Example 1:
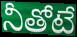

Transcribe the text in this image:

నీతోటే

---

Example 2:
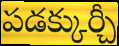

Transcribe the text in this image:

పడక్కుర్చీ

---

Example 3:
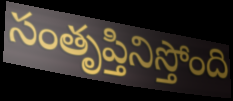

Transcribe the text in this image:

సంతృప్తినిస్తోంది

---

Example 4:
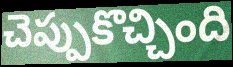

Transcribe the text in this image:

చెప్పుకొచ్చింది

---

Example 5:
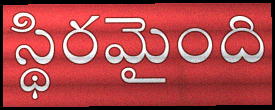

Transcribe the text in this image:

స్థిరమైంది